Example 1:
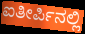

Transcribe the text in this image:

ಐತೀರ್ಪಿನಲ್ಲಿ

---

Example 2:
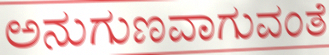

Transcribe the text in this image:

ಅನುಗುಣವಾಗುವಂತೆ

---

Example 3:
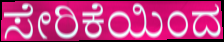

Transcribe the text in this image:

ಸೇರಿಕೆಯಿಂದ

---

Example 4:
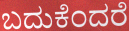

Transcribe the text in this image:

ಬದುಕೆಂದರೆ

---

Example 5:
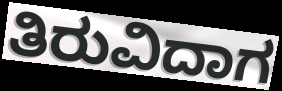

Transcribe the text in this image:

ತಿರುವಿದಾಗ